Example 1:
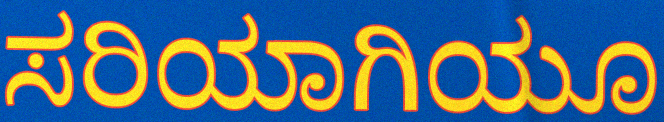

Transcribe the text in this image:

ಸರಿಯಾಗಿಯೂ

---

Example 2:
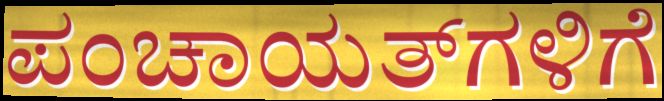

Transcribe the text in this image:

ಪಂಚಾಯತ್‌ಗಳಿಗೆ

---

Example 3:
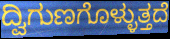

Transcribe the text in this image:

ದ್ವಿಗುಣಗೊಳ್ಳುತ್ತದೆ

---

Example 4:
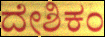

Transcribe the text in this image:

ದೇಶಿಕಂ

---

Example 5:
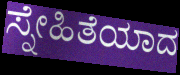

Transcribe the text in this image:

ಸ್ನೇಹಿತೆಯಾದ